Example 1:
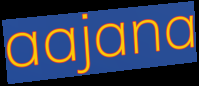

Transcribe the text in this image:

aajana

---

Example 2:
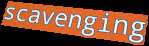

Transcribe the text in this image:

scavenging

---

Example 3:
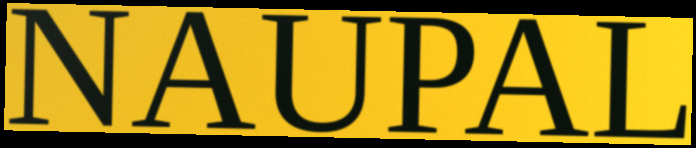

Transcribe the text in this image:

NAUPAL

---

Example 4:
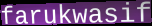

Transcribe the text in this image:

farukwasif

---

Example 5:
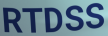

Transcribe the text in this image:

RTDSS